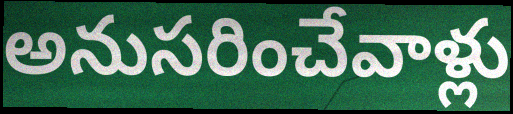
అనుసరించేవాళ్లు